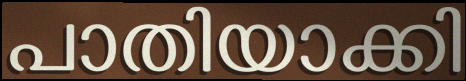
പാതിയാക്കി